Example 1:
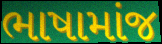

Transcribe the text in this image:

ભાષામાંજ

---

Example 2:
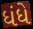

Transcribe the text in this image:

ધંધે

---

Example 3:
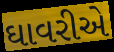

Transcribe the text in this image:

ઘાવરીએ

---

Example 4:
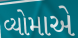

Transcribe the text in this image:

વ્યોમાએ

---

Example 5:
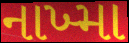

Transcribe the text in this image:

નાખ્મા